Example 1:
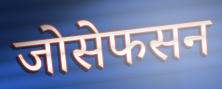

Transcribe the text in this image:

जोसेफसन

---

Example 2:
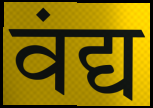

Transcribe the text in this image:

वंद्य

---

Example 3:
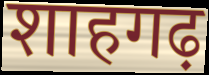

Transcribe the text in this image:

शाहगढ़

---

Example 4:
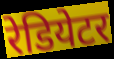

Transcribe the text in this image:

रेडियेटर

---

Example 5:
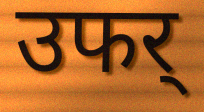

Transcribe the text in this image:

उफर्